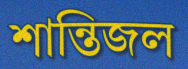
শান্তিজল